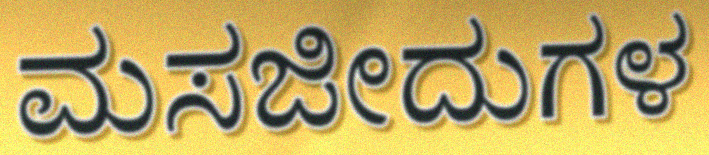
ಮಸಜೀದುಗಳ